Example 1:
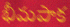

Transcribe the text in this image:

భీమపాక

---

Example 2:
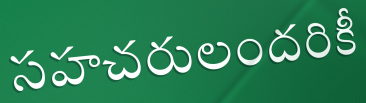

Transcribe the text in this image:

సహచరులందరికీ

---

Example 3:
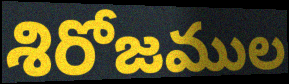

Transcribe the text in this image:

శిరోజముల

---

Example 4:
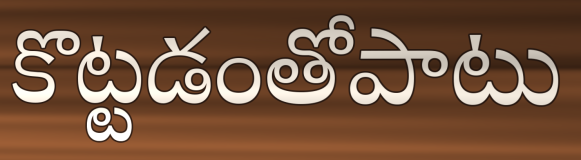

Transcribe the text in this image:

కొట్టడంతోపాటు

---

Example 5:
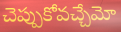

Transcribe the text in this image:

చెప్పుకోవచ్చేమో